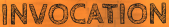
INVOCATION